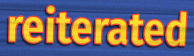
reiterated